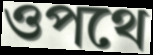
ওপথে